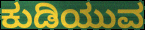
ಕುಡಿಯುವ